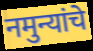
नमुन्यांचे